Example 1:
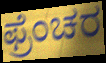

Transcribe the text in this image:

ಫ್ರೆಂಚರ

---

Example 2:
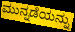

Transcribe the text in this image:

ಮುನ್ನಡೆಯನ್ನು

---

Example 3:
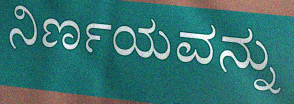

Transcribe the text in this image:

ನಿರ್ಣಯವನ್ನು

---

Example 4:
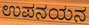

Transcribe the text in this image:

ಉಪನಯನ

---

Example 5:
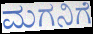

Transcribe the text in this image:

ಮಗನಿಗೆ